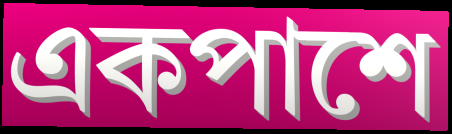
একপাশে